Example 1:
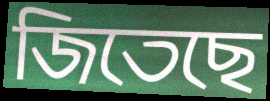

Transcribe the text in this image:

জিতেছে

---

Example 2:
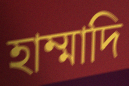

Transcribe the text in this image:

হাম্মাদি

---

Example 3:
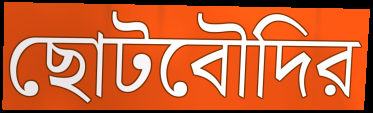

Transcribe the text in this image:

ছোটবৌদির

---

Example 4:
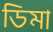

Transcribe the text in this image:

ডিমা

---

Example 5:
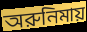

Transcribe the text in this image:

অরুনিমায়